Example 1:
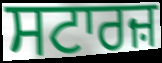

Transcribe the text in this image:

ਸਟਾਰਜ਼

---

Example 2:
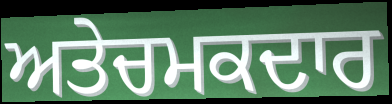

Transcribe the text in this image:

ਅਤੇਚਮਕਦਾਰ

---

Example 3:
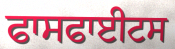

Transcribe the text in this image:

ਫਾਸਫਾਈਟਸ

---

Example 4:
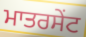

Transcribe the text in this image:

ਮਾਤਰਸੇਂਟ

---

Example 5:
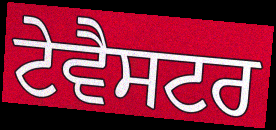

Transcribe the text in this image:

ਟੇਵੈਸਟਰ